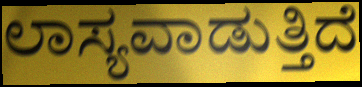
ಲಾಸ್ಯವಾಡುತ್ತಿದೆ